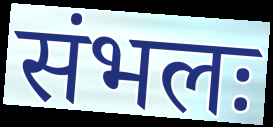
संभलः